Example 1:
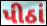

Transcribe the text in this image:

પીઠાં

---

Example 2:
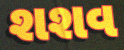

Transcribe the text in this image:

શશવ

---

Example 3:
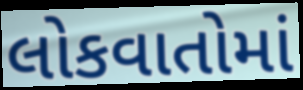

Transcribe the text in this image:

લોકવાતોમાં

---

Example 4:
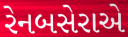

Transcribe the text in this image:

રેનબસેરાએ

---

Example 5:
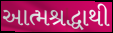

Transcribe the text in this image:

આત્મશ્રદ્ધાથી